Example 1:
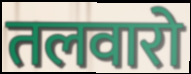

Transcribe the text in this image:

तलवारो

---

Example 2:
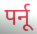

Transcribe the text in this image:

पर्नू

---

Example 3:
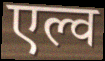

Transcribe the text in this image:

एल्व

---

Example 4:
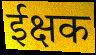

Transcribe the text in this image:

ईक्षक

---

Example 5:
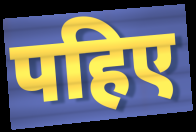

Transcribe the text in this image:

पहिए